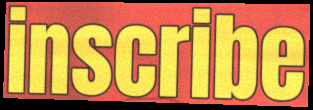
inscribe